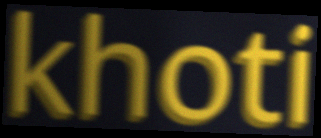
khoti